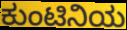
ಕುಂಟಿನಿಯ